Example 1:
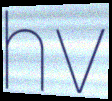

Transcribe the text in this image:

hv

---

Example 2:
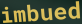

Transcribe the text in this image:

imbued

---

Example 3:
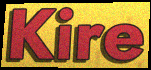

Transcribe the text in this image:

Kire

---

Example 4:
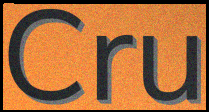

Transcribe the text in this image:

Cru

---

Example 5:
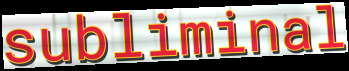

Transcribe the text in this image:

subliminal